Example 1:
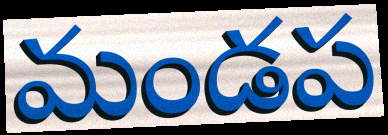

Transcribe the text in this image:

మండప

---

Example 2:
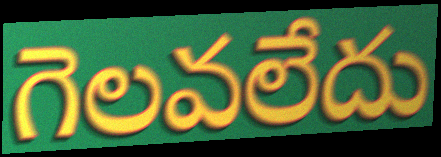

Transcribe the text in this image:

గెలవలేదు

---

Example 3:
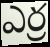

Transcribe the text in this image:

ఎర్ర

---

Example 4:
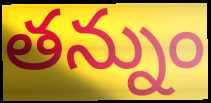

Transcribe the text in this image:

తన్నుం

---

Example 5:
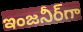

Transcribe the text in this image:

ఇంజనీర్‌గా